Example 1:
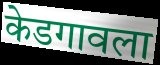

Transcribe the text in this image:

केडगावला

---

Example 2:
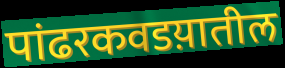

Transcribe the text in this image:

पांढरकवडय़ातील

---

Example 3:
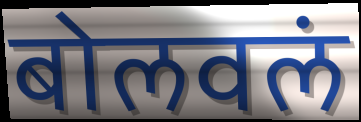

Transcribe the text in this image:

बोलवलं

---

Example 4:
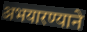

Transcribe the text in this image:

अभयारण्याने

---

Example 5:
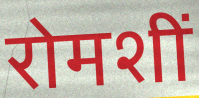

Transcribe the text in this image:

रोमशीं